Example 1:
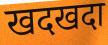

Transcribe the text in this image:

खदखदा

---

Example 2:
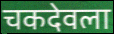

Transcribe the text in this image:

चकदेवला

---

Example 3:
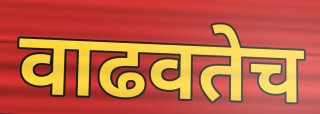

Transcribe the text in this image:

वाढवतेच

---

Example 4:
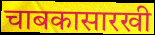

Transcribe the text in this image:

चाबकासारखी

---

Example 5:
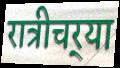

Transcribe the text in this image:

रात्रीचर्या